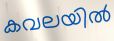
കവലയിൽ